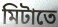
মিটাতে